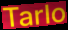
Tarlo